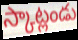
స్కాట్లండు